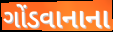
ગોંડવાનાના